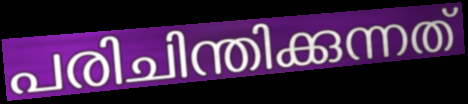
പരിചിന്തിക്കുന്നത്